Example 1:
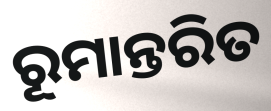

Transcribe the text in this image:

ରୂମାନ୍ତରିତ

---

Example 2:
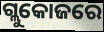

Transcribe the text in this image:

ଗ୍ଲୁକୋଜରେ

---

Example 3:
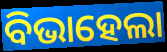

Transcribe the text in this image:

ବିଭାହେଲା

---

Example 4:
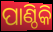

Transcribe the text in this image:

ପାଣ୍ଠିକି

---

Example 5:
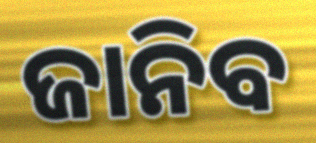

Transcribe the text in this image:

ଜାନିବ